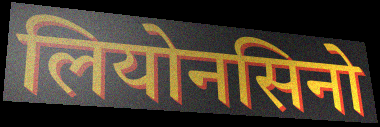
लियोनसिनो